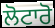
ਲੋਟਾਰੋ